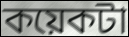
কয়েকটা